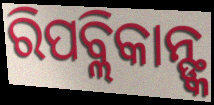
ରିପବ୍ଲିକାନ୍ଙ୍କ